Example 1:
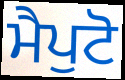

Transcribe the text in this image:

ਮੈਪੁਟੋ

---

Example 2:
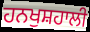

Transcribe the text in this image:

ਹਨਖੁਸ਼ਹਾਲੀ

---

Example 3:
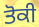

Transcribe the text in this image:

ਤੋਕੀ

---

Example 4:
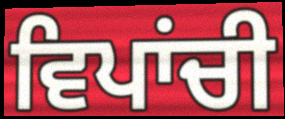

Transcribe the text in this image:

ਵਿਪਾਂਚੀ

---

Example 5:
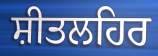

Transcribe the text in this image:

ਸ਼ੀਤਲਹਿਰ